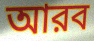
আরব